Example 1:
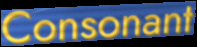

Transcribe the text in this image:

Consonant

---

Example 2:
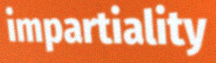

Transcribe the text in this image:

impartiality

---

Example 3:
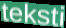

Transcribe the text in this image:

teksti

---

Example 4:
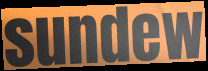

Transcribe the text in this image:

sundew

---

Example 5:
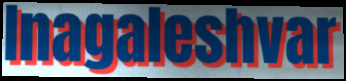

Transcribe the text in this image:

Inagaleshvar